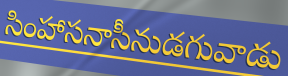
సింహాసనాసీనుడగువాడు